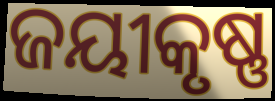
ଜୟୀକୃଷ୍ଣ